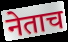
नेताच